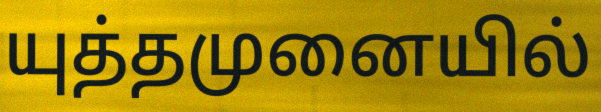
யுத்தமுனையில்